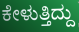
ಕೇಳುತ್ತಿದ್ದು